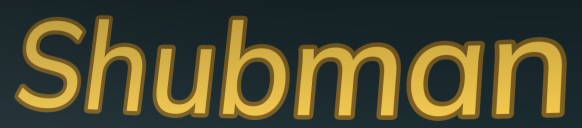
Shubman